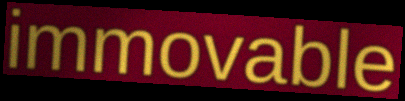
immovable